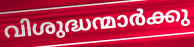
വിശുദ്ധന്മാർക്കു